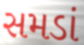
સમડાં